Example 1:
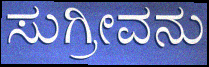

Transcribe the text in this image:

ಸುಗ್ರೀವನು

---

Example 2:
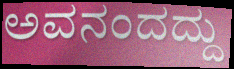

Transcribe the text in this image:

ಅವನಂದದ್ದು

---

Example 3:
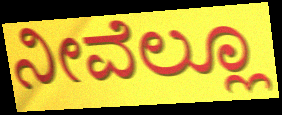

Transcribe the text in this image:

ನೀವೆಲ್ಲೂ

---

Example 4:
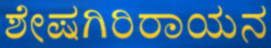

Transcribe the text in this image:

ಶೇಷಗಿರಿರಾಯನ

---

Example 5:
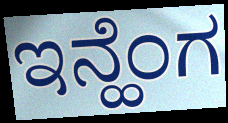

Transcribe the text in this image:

ಇನ್ಹೆಂಗ